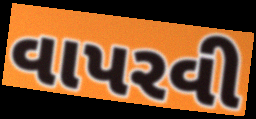
વાપરવી